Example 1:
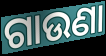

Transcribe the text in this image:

ଗାଉଣା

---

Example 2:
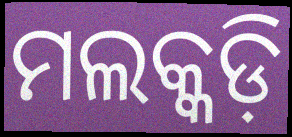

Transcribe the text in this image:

ମଲକ୍କଡ଼ି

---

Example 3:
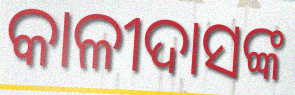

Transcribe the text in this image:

କାଳୀଦାସଙ୍କ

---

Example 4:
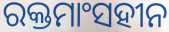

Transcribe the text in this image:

ରକ୍ତମାଂସହୀନ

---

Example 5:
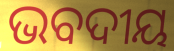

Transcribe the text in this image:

ଭବଦୀୟ